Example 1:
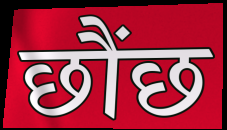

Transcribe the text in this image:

छौंछ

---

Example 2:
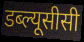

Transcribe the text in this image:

डब्ल्यूसीसी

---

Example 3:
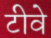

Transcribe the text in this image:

टीवे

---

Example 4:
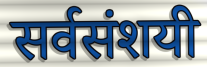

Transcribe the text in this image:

सर्वसंशयी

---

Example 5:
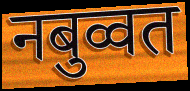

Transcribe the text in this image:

नबुव्वत